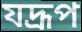
যদ্রূপ